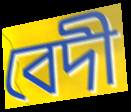
বেদী